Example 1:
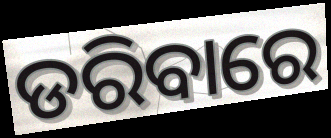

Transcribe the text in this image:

ଡରିବାରେ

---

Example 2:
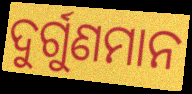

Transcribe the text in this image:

ଦୁର୍ଗୁଣମାନ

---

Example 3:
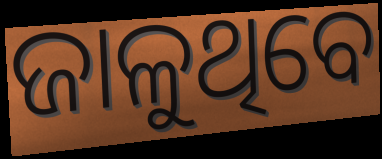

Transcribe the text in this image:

ଜାଳୁଥିବେ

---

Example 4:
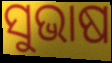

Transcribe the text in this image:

ସୁଭାଷ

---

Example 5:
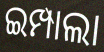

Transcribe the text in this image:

ଇମ୍ପାଲା